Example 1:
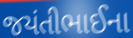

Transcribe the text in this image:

જયંતીભાઈના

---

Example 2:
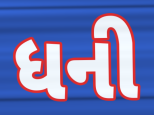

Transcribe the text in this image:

ધની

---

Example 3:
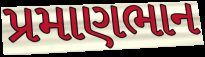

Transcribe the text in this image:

પ્રમાણભાન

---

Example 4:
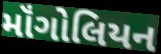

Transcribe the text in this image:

મૉંગોલિયન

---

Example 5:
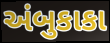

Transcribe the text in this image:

અંબુકાકા